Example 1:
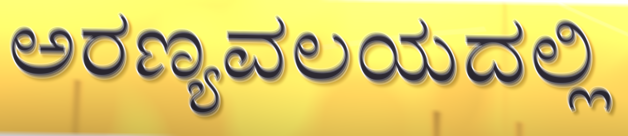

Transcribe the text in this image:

ಅರಣ್ಯವಲಯದಲ್ಲಿ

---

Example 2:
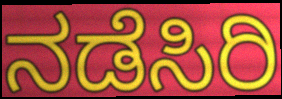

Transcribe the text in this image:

ನಡೆಸಿರಿ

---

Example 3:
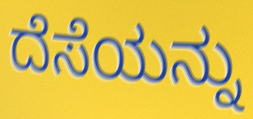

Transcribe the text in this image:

ದೆಸೆಯನ್ನು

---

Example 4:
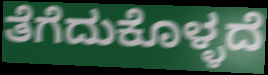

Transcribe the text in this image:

ತೆಗೆದುಕೊಳ್ಳದೆ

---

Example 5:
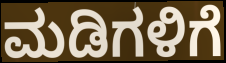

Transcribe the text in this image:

ಮಡಿಗಳಿಗೆ